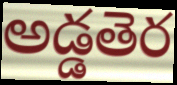
అడ్డతెర